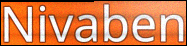
Nivaben